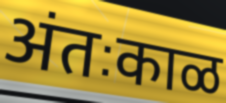
अंतःकाळ